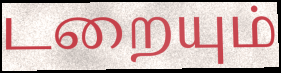
டறையும்